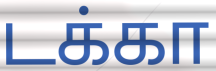
டக்கா